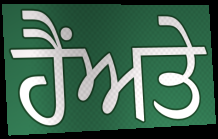
ਹੈਂਅਤੇ